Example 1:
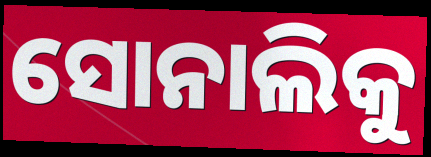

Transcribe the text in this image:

ସୋନାଲିକୁ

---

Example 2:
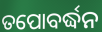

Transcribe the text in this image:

ତପୋବର୍ଦ୍ଧନ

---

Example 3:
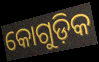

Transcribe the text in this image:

କୋଗୁଡ଼ିକ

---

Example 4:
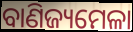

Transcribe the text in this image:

ବାଣିଜ୍ୟମେଳା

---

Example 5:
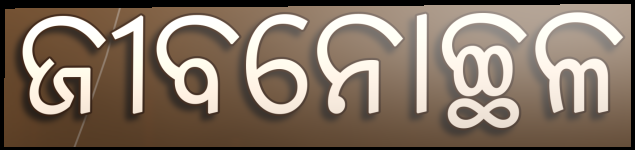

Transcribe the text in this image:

ଜୀବନୋଚ୍ଛଳ